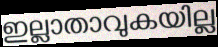
ഇല്ലാതാവുകയില്ല